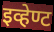
इव्हेण्ट